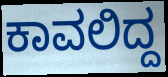
ಕಾವಲಿದ್ದ